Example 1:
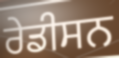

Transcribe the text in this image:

ਰੇਡੀਸਨ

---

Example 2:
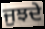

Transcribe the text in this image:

ਜੁਝਦੇ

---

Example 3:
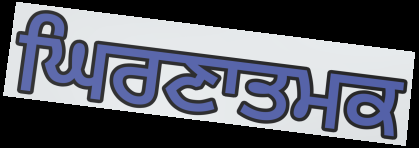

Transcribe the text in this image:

ਘਿਰਣਾਤਮਕ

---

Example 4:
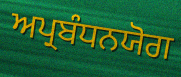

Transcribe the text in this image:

ਅਪ੍ਰਬੰਧਨਯੋਗ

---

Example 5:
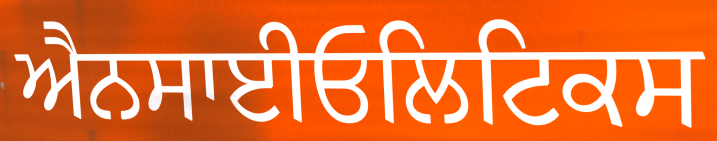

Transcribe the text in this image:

ਐਨਸਾਈਓਲਿਟਿਕਸ